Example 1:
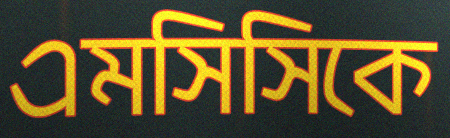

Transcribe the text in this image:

এমসিসিকে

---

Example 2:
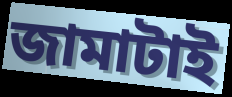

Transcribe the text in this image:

জামাটাই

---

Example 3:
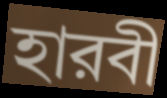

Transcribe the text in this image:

হারবী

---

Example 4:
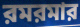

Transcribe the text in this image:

রমরমার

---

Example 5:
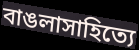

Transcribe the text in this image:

বাঙলাসাহিত্যে